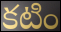
కటిం